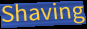
Shaving